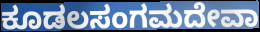
ಕೂಡಲಸಂಗಮದೇವಾ